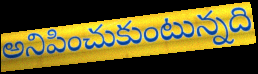
అనిపించుకుంటున్నది